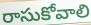
రాసుకోవాలి